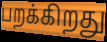
பறக்கிறது